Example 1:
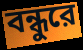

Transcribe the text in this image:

বন্ধুরে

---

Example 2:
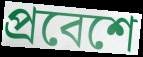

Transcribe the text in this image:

প্রবেশে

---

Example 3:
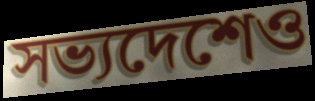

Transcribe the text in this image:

সভ্যদেশেও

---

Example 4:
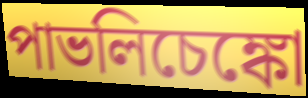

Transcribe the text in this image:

পাভলিচেঙ্কো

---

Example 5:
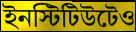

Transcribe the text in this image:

ইনস্টিটিউটেও